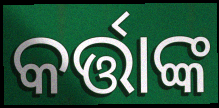
କର୍ତ୍ତାଙ୍କ